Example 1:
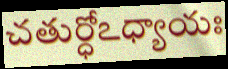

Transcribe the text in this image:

చతుర్ధోఽధ్యాయః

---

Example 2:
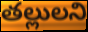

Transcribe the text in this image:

తల్లులని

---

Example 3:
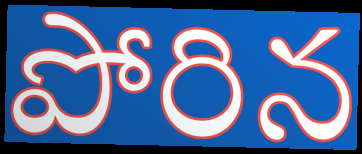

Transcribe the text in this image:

పోరిన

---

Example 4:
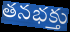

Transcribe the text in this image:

తనభక్తు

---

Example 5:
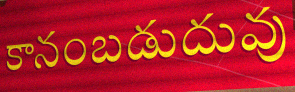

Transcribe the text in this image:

కానంబడుదువు